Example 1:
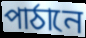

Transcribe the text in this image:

পাঠানে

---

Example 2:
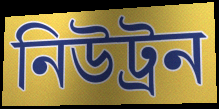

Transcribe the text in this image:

নিউট্ৰন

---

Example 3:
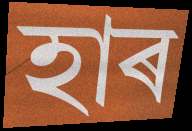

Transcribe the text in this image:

হাৰ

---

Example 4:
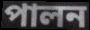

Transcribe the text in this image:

পালন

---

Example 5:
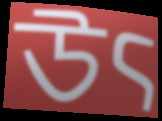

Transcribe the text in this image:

উৎ